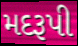
મદરૂપી